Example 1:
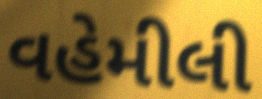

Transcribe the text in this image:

વહેમીલી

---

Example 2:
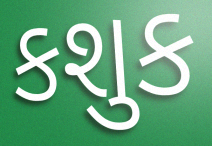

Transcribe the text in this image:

કશુક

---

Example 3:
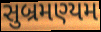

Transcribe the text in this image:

સુબ્રમણ્યમ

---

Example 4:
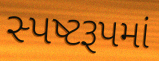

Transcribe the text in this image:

સ્પષ્ટરૂપમાં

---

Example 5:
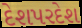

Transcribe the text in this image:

દેશપરદેશ